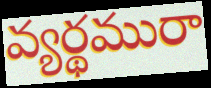
వ్యర్థమురా